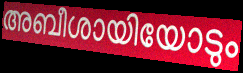
അബീശായിയോടും